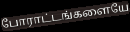
போராட்டங்களையே